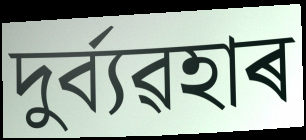
দুৰ্ব্যৱহাৰ